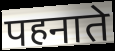
पहनाते